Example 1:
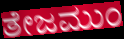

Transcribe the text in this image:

ತೇಜಮುಂ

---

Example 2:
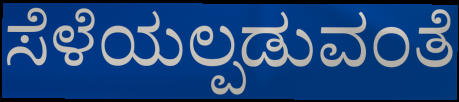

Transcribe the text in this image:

ಸೆಳೆಯಲ್ಪಡುವಂತೆ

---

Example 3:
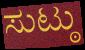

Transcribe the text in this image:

ಸುಟ್ಠು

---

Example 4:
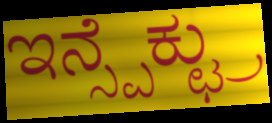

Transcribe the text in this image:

ಇನ್ಸ್ಪೆಕ್ಟ್ರು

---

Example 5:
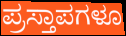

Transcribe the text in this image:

ಪ್ರಸ್ತಾಪಗಳೂ